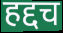
हद्दच